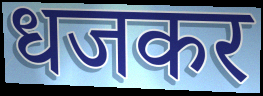
धजकर